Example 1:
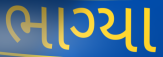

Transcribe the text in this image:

ભાગ્યા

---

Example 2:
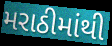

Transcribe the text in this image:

મરાઠીમાંથી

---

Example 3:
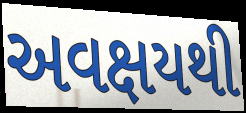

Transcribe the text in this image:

અવક્ષયથી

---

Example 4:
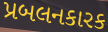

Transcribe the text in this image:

પ્રબલનકારક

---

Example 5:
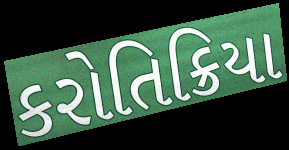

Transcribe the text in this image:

કરોતિક્રિયા